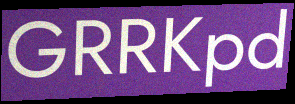
GRRKpd